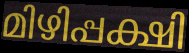
മിഴിപ്പക്ഷി